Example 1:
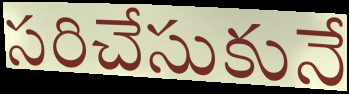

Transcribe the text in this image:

సరిచేసుకునే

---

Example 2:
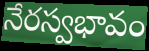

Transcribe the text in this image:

నేరస్వభావం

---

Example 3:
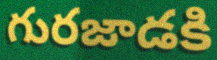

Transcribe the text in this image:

గురజాడకి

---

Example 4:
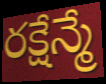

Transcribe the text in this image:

రక్షేన్మే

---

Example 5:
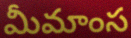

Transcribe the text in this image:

మీమాంస